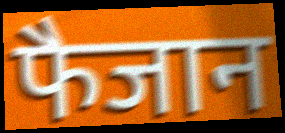
फैजान